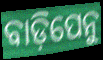
ବାଡ଼ିପେନୁ